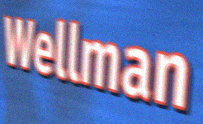
Wellman